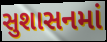
સુશાસનમાં